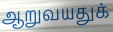
ஆறுவயதுக்